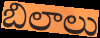
బిలాలు